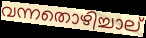
വന്നതൊഴിച്ചാല്